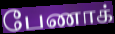
பேணாக்